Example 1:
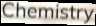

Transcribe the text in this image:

Chemistry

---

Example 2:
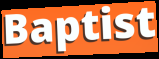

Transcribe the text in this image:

Baptist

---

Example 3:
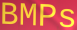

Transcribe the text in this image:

BMPs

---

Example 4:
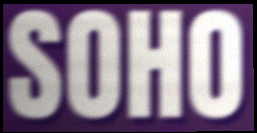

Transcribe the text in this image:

SOHO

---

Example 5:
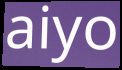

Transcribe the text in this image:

aiyo